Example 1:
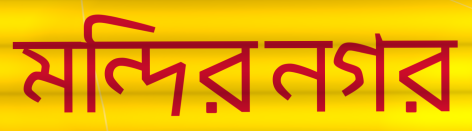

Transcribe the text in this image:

মন্দিরনগর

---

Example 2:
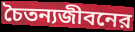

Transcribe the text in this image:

চৈতন্যজীবনের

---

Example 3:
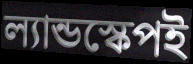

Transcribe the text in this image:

ল্যান্ডস্কেপই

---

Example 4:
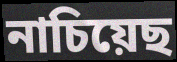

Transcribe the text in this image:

নাচিয়েছ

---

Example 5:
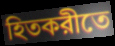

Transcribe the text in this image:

হিতকরীতে